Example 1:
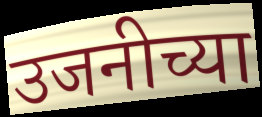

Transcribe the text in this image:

उजनीच्या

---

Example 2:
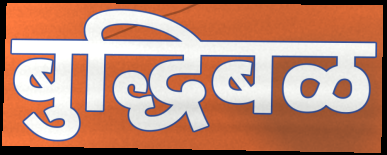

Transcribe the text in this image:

बुद्धिबळ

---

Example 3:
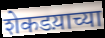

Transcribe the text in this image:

शेकडय़ाच्या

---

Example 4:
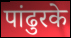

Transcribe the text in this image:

पांढुरके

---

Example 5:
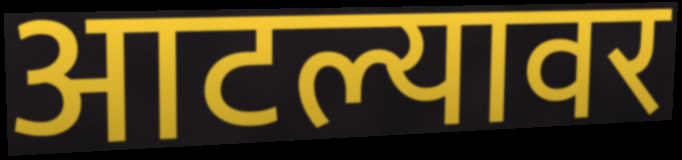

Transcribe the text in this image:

आटल्यावर